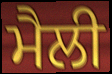
ਮੈਲੀ